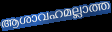
ആശാവഹമല്ലാത്ത